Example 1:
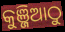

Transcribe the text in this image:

କୁଞ୍ଜିଆଠୁ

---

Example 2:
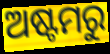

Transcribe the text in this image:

ଅଷ୍ଟମରୁ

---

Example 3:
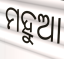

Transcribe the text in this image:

ମହୁଆ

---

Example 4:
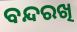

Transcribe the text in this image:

ବନ୍ଦରଖି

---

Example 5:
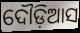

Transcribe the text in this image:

ଦୌଡ଼ିଆସ